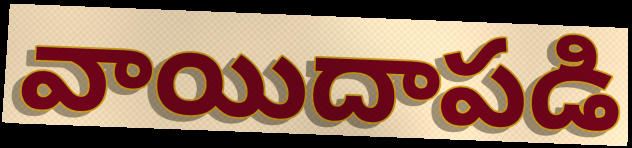
వాయిదాపడి